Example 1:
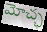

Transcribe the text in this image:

మోచ్ఛ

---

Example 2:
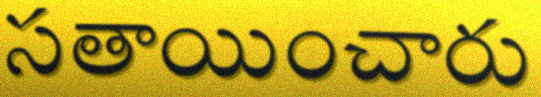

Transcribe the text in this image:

సతాయించారు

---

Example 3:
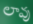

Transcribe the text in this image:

లావు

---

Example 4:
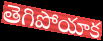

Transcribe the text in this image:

తెగిపోయాక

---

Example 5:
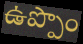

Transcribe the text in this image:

ఉప్పొం